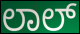
ಲಾಲ್